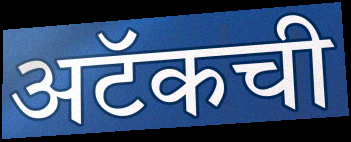
अटॅकची